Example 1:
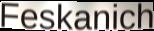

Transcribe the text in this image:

Feskanich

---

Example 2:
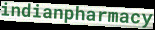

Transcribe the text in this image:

indianpharmacy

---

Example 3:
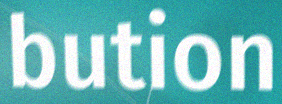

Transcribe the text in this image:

bution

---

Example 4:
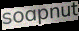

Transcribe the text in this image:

soapnut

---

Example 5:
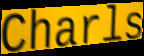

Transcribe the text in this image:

Charls